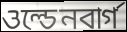
ওল্ডেনবার্গ